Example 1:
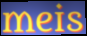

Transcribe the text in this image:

meis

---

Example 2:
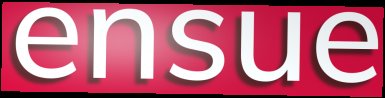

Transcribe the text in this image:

ensue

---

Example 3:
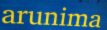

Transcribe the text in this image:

arunima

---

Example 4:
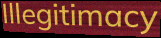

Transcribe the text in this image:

Illegitimacy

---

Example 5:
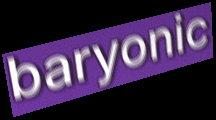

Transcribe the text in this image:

baryonic